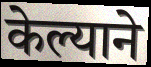
केल्‍याने